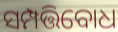
ସମ୍ପତ୍ତିବୋଧ